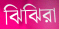
ঝিঝিরা